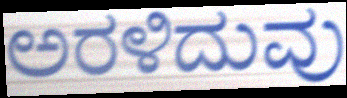
ಅರಳಿದುವು